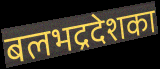
बलभद्रदेशका